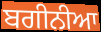
ਬਗੀਨੀਆ